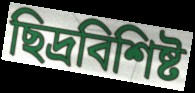
ছিদ্রবিশিষ্ট